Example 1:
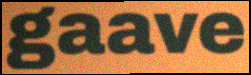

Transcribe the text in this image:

gaave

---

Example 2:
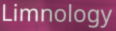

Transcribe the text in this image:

Limnology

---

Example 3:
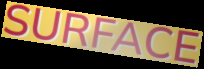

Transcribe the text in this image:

SURFACE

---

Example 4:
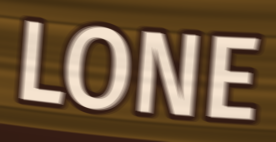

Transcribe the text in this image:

LONE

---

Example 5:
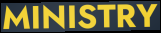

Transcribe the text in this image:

MINISTRY